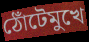
ঠোঁটেমুখে